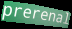
prerenal